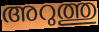
അറുത്തു